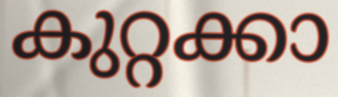
കുറ്റക്കാ